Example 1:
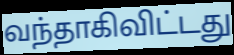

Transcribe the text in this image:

வந்தாகிவிட்டது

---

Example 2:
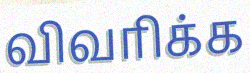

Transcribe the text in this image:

விவரிக்க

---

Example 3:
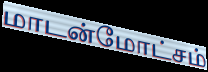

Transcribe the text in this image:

மாடன்மோட்சம்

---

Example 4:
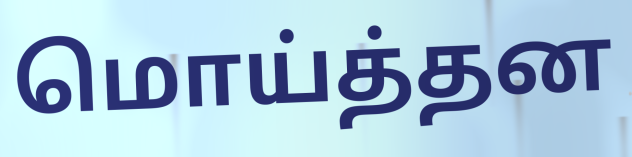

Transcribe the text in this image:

மொய்த்தன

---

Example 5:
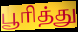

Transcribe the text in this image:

பூரித்து